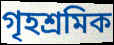
গৃহশ্রমিক